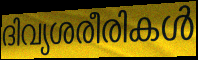
ദിവ്യശരീരികൾ